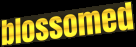
blossomed